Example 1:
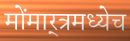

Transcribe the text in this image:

मोंमार्त्रमध्येच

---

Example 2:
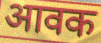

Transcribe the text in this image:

आवक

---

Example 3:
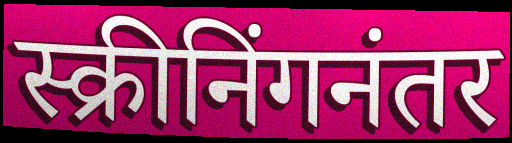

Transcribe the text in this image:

स्क्रीनिंगनंतर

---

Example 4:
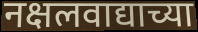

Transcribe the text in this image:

नक्षलवाद्याच्या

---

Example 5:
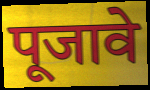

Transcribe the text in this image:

पूजावे